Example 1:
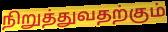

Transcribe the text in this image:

நிறுத்துவதற்கும்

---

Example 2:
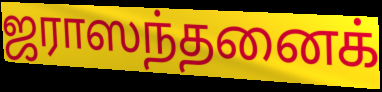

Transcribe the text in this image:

ஜராஸந்தனைக்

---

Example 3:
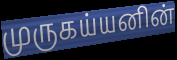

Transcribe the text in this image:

முருகய்யனின்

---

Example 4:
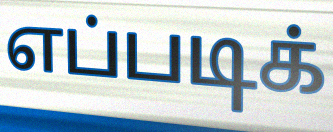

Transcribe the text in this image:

எப்படிக்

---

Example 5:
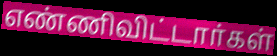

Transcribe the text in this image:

எண்ணிவிட்டார்கள்